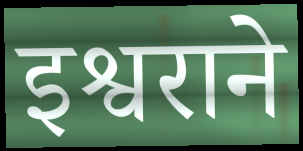
इश्वराने